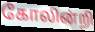
கோலின்றி